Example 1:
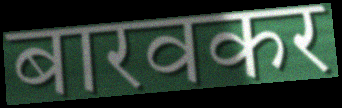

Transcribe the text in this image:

बारवकर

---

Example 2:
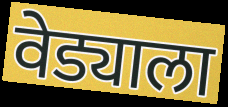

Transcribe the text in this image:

वेड्याला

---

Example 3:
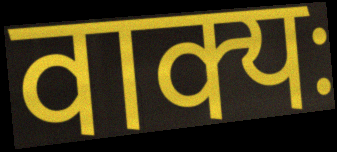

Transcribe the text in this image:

वाक्यः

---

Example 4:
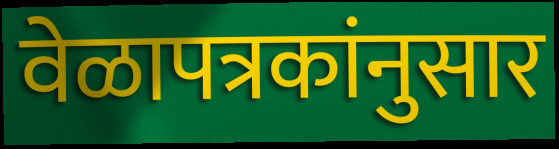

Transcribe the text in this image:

वेळापत्रकांनुसार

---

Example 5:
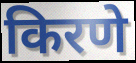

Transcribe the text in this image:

किरणे